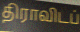
திராவிடப்